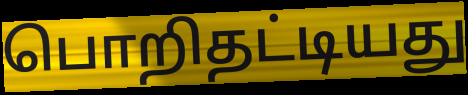
பொறிதட்டியது